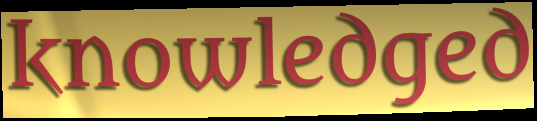
knowledged